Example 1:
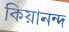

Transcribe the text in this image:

কিয়ানন্দ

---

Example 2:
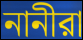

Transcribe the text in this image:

নানীরা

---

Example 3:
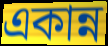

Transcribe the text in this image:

একান্ন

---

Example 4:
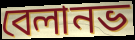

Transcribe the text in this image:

বেলানভ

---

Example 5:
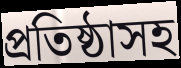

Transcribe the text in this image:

প্রতিষ্ঠাসহ